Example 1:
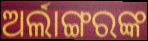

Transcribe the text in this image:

ଅର୍ଲାଙ୍ଗରଙ୍କ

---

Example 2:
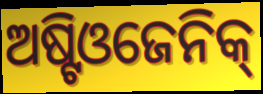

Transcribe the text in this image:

ଅଷ୍ଟିଓଜେନିକ୍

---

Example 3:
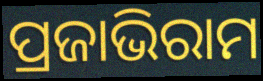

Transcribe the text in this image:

ପ୍ରଜାଭିରାମ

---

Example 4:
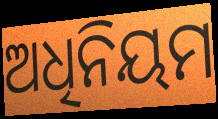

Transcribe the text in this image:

ଅଧିନିୟମ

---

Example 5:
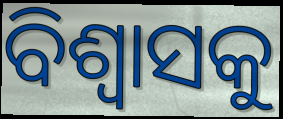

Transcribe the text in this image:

ବିଶ୍ୱାସକୁ